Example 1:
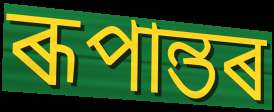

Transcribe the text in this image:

ৰূপান্তৰ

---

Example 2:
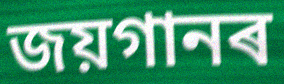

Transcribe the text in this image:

জয়গানৰ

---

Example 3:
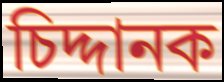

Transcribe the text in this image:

চিদ্দানক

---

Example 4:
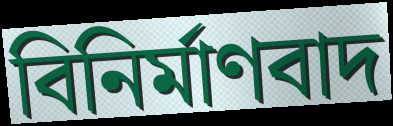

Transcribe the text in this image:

বিনিৰ্মাণবাদ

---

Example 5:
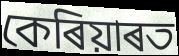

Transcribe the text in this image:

কেৰিয়াৰত